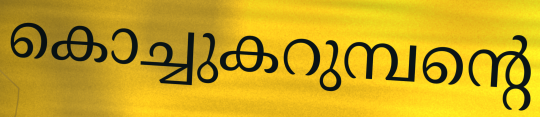
കൊച്ചുകറുമ്പന്റെ